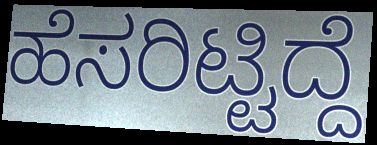
ಹೆಸರಿಟ್ಟಿದ್ದೆ